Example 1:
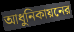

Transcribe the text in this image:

আধুনিকায়নের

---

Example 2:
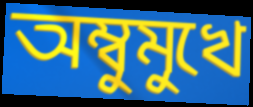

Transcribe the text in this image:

অম্বুমুখে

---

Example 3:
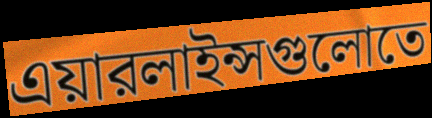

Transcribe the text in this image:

এয়ারলাইন্সগুলোতে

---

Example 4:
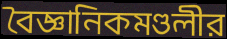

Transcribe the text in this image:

বৈজ্ঞানিকমণ্ডলীর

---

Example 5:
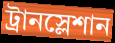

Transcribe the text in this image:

ট্রানস্লেশান